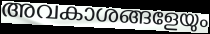
അവകാശങ്ങളേയും